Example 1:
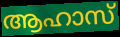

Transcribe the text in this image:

ആഹാസ്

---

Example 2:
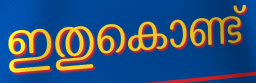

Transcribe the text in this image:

ഇതുകൊണ്ട്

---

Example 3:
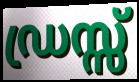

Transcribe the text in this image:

ഡ്രസ്സ്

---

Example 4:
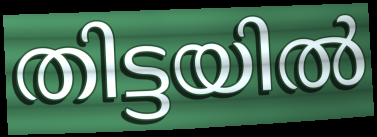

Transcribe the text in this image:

തിട്ടയിൽ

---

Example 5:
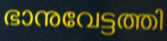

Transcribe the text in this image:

ഭാനുവേട്ടത്തി